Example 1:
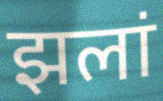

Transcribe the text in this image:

झलां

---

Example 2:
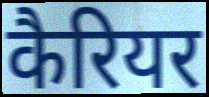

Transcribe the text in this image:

कैरियर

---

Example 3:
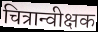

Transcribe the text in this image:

चित्रान्वीक्षक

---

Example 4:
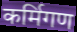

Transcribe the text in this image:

कर्मिगण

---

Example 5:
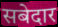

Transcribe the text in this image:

सबेदार